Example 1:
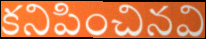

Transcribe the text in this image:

కనిపించినవి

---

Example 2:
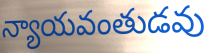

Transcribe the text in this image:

న్యాయవంతుడవు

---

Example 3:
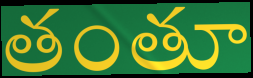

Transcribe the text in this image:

తంతూ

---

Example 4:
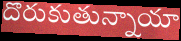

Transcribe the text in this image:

దొరుకుతున్నాయా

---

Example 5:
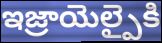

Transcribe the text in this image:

ఇజ్రాయెల్పైకి